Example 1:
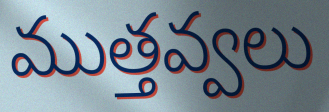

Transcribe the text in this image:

ముత్తవ్వలు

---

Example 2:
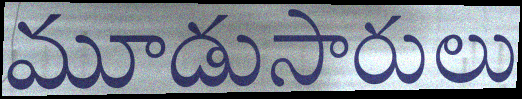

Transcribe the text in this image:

మూడుసారులు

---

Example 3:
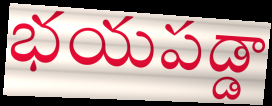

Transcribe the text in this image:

భయపడ్డా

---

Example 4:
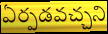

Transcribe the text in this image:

ఏర్పడవచ్చని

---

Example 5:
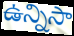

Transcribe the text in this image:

ఉన్నిసా